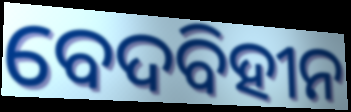
ବେଦବିହୀନ